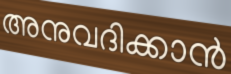
അനുവദിക്കാൻ